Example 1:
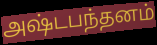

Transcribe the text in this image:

அஷ்டபந்தனம்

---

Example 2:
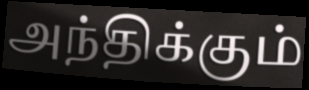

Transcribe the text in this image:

அந்திக்கும்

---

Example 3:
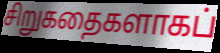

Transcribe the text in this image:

சிறுகதைகளாகப்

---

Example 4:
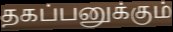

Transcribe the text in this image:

தகப்பனுக்கும்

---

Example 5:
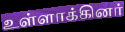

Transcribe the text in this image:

உள்ளாக்கினர்